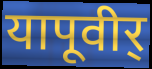
यापूवीर्